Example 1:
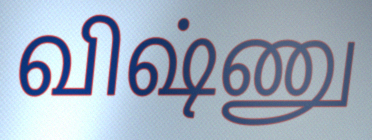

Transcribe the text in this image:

விஷ்ணு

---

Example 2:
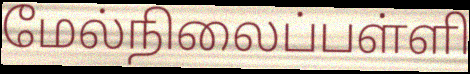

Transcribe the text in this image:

மேல்நிலைப்பள்ளி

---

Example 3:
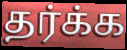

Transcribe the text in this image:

தர்க்க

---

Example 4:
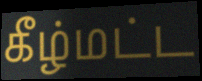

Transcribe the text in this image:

கீழ்மட்ட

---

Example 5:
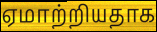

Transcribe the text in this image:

ஏமாற்றியதாக